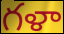
గళా